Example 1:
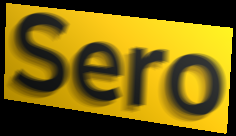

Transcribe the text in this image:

Sero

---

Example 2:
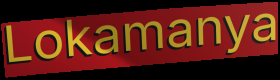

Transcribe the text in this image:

Lokamanya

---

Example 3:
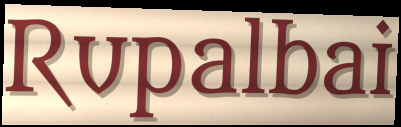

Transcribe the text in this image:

Rupalbai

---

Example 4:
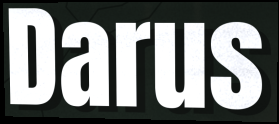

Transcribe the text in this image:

Darus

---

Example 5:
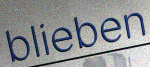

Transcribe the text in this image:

blieben